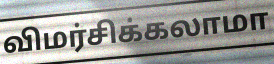
விமர்சிக்கலாமா